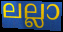
ലല്ലാ